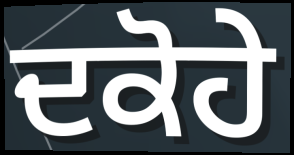
ਦਕੋਹੇ